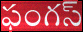
ఫంగస్